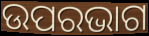
ଉପରଭାଗ